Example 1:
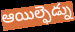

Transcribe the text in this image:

ఆయిల్ఫెడ్ను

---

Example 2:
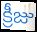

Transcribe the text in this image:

క్రీజు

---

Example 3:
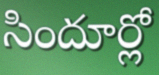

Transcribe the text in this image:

సిందూర్లో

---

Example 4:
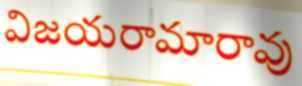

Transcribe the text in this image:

విజయరామారావు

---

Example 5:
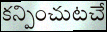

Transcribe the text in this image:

కన్పించుటచే